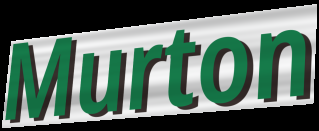
Murton